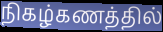
நிகழ்கணத்தில்